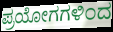
ಪ್ರಯೋಗಗಳಿಂದ